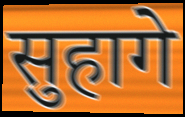
सुहागे